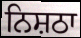
ਨਿਸ਼ਠਾ